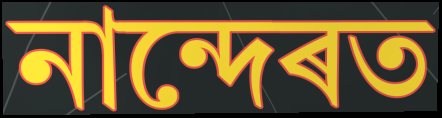
নান্দেৰত